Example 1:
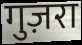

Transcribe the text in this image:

गुज़रा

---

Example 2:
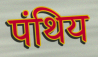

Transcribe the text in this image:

पंथिय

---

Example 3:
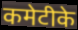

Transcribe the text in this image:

कमेटीके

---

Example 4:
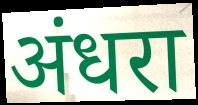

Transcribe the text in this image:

अंधरा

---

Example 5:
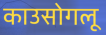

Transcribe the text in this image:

काउसोगलू